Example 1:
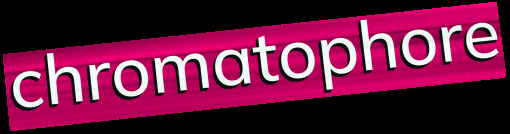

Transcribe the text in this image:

chromatophore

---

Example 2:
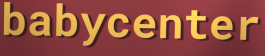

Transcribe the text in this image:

babycenter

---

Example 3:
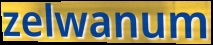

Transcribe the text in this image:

zelwanum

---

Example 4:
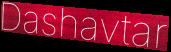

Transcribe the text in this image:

Dashavtar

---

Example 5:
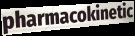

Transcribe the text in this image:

pharmacokinetic